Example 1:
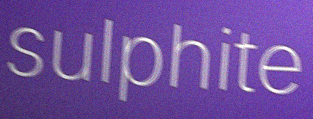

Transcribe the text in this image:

sulphite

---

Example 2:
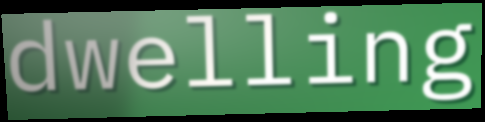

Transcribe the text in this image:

dwelling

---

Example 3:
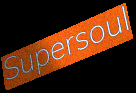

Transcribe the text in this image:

Supersoul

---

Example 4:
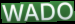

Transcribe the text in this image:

WADO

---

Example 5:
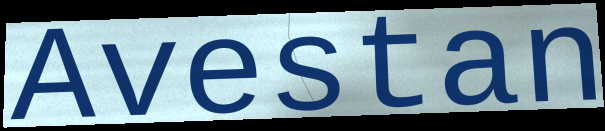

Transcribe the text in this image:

Avestan